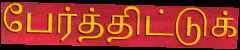
பேர்த்திட்டுக்